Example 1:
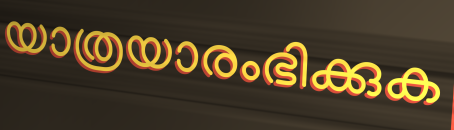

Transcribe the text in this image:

യാത്രയാരംഭിക്കുക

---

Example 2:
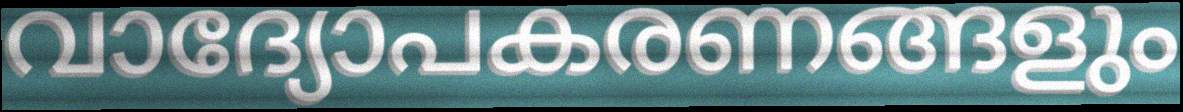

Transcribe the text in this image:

വാദ്യോപകരണങ്ങളും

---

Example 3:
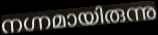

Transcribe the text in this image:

നഗ്നമായിരുന്നു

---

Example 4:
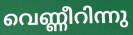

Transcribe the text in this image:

വെണ്ണീറിന്നു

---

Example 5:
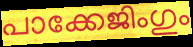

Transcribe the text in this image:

പാക്കേജിംഗും